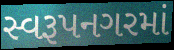
સ્વરૂપનગરમાં